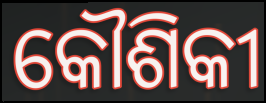
କୌଶିକୀ